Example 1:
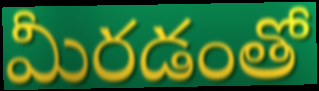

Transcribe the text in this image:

మీరడంతో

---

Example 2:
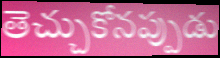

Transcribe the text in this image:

తెచ్చుకోనప్పుడు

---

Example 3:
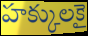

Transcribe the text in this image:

హక్కులకై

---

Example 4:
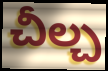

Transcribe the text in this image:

చీల్చ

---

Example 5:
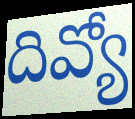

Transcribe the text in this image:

దివ్యో